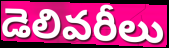
డెలివరీలు